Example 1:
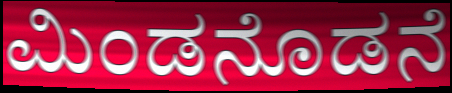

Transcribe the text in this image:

ಮಿಂಡನೊಡನೆ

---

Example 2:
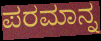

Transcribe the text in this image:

ಪರಮಾನ್ನ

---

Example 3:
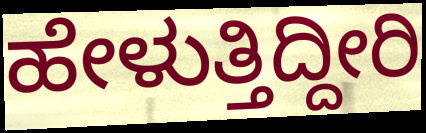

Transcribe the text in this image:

ಹೇಳುತ್ತಿದ್ದೀರಿ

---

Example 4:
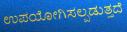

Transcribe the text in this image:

ಉಪಯೋಗಿಸಲ್ಪಡುತ್ತದೆ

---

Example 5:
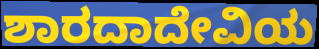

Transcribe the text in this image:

ಶಾರದಾದೇವಿಯ